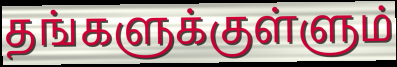
தங்களுக்குள்ளும்